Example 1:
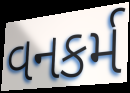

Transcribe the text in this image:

વનકર્મ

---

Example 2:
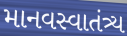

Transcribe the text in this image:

માનવસ્વાતંત્ર્ય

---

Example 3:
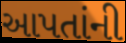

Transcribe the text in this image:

આપતાંની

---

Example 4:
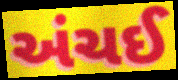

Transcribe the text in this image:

અંચઈ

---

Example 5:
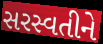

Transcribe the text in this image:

સરસ્વતીને